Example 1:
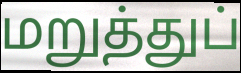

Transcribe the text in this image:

மறுத்துப்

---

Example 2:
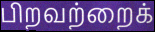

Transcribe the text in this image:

பிறவற்றைக்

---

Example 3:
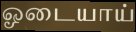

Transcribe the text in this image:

ஓடையாய்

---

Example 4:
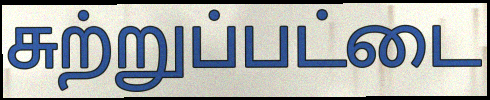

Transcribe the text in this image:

சுற்றுப்பட்டை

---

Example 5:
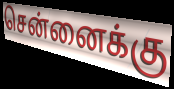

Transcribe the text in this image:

சென்னைக்கு